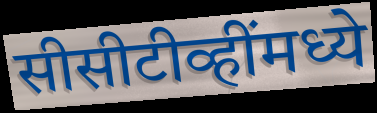
सीसीटीव्हींमध्ये